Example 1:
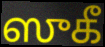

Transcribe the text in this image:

ஸுகீ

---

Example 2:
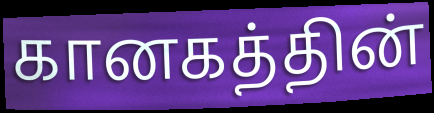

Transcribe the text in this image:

கானகத்தின்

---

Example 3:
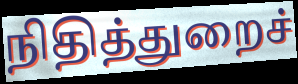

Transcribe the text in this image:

நிதித்துறைச்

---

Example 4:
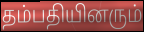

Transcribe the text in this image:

தம்பதியினரும்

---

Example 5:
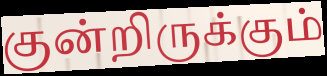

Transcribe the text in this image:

குன்றிருக்கும்